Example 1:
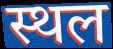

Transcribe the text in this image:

स्‍थल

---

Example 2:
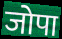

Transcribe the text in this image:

जोपा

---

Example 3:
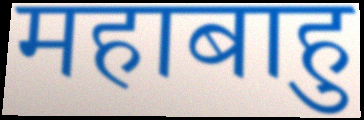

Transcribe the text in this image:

महाबाहु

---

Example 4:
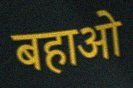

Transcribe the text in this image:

बहाओ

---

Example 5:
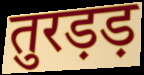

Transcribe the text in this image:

तुरड़ड़